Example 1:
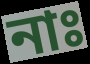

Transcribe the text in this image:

নাঃ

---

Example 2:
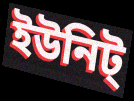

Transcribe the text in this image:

ইউনিট্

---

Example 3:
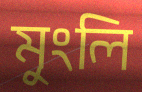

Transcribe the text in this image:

মুংলি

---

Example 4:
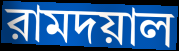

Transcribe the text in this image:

রামদয়াল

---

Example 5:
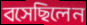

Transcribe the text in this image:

বসেছিলেন